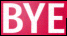
BYE